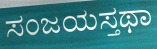
ಸಂಜಯಸ್ತಥಾ